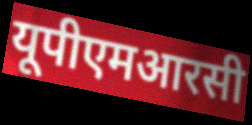
यूपीएमआरसी